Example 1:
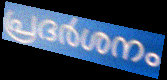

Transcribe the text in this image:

പ്രദർശനം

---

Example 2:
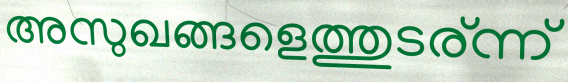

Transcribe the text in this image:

അസുഖങ്ങളെത്തുടര്ന്ന്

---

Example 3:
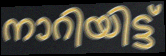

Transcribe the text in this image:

നാറിയിട്ട്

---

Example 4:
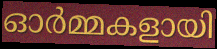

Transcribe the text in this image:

ഓർമ്മകളായി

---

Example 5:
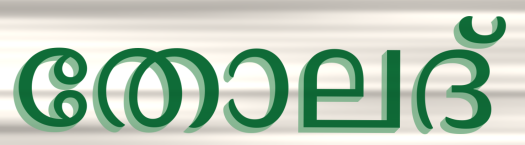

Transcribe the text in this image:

തോലദ്